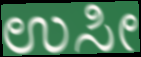
ಉಸೀ